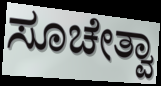
ಸೂಚೇತ್ವಾ